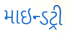
માઇન્ડટ્રી